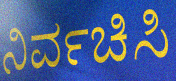
ನಿರ್ವಚಿಸಿ